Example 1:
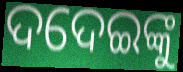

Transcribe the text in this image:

ଦଦେଇଙ୍କୁ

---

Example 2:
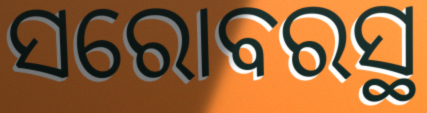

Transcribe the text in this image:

ସରୋବରସ୍ଥ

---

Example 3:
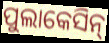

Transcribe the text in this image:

ପୁଲାକେସିନ୍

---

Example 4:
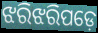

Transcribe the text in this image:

ଝରିଝରିପଡ଼େ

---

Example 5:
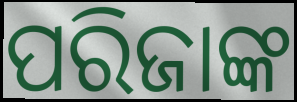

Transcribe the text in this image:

ପରିଜାଙ୍କ